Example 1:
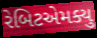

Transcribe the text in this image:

રેબિટએમક્યુ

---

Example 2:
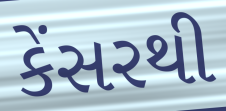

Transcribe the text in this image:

કેંસરથી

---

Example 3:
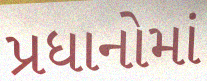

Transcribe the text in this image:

પ્રધાનોમાં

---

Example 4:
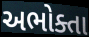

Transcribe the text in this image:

અભોક્તા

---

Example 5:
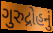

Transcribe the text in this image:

ગુરુદ્રોહનું